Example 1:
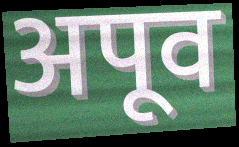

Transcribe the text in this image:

अपूव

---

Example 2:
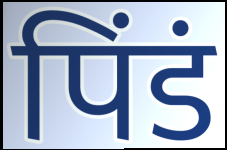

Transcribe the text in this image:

पिंडं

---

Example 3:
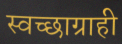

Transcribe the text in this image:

स्वच्छाग्राही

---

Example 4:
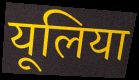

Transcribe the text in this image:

यूलिया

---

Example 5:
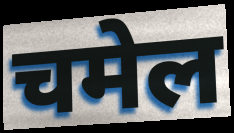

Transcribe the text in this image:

चमेल